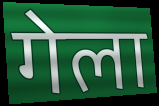
गेला